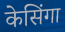
केसिंगा